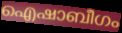
ഐഷാബീഗം